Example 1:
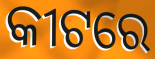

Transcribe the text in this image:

କୀଟରେ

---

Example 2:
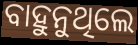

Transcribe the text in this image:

ବାହୁନୁଥିଲେ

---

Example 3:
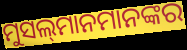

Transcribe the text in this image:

ମୁସଲ୍‌ମାନମାନଙ୍କର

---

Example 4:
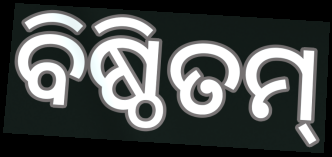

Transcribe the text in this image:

ବିଷ୍ଠିତମ୍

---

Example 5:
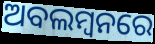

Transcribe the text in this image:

ଅବଲମ୍ବନରେ